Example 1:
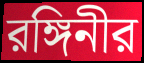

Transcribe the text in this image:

রঙ্গিনীর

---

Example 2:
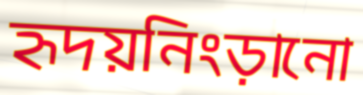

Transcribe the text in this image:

হৃদয়নিংড়ানো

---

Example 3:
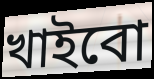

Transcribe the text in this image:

খাইবো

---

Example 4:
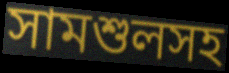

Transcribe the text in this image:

সামশুলসহ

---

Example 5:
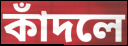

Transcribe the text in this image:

কাঁদলে